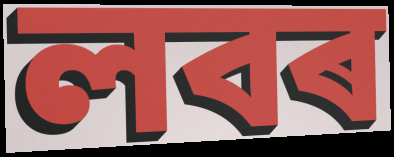
লবৰ